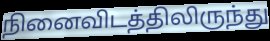
நினைவிடத்திலிருந்து